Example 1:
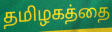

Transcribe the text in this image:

தமிழகத்தை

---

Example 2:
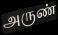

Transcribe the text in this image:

அருண்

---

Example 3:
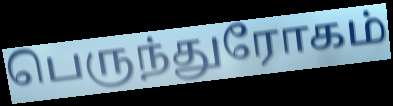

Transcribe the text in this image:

பெருந்துரோகம்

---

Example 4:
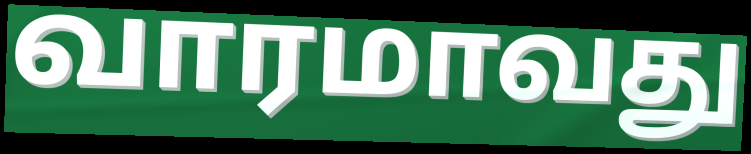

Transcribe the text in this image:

வாரமாவது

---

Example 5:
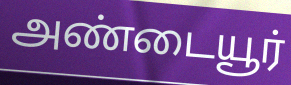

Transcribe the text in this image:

அண்டையூர்